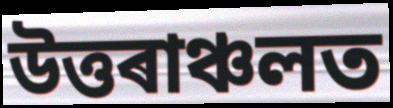
উত্তৰাঞ্চলত